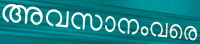
അവസാനംവരെ